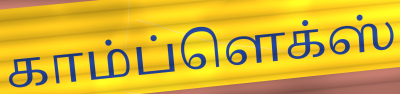
காம்ப்ளெக்ஸ்